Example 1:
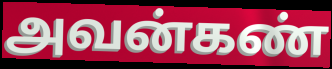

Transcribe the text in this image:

அவன்கண்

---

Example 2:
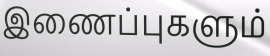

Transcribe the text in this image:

இணைப்புகளும்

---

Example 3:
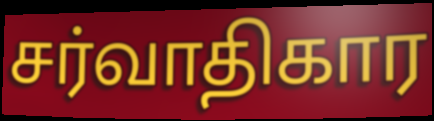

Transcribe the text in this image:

சர்வாதிகார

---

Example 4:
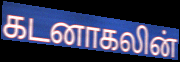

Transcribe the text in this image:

கடனாகலின்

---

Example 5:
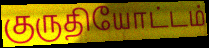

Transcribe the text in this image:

குருதியோட்டம்